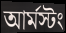
আর্মস্টং